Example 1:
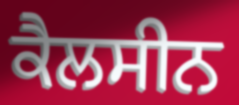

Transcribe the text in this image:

ਕੈਲਸੀਨ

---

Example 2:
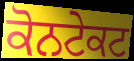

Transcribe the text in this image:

ਕੋਨਟੇਕਟ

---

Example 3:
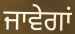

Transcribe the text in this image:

ਜਾਵੇਗਾਂ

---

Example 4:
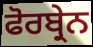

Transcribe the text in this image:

ਫੋਰਬ੍ਰੇਨ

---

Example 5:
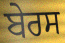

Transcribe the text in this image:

ਬੇਰਸ